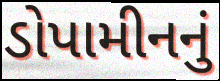
ડોપામીનનું